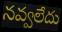
నవ్వలేదు